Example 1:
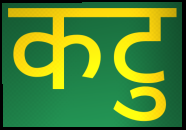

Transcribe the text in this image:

कटु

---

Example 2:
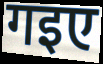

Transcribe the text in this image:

गइए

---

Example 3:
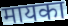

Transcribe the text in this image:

मायका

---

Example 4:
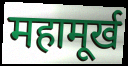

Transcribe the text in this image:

महामूर्ख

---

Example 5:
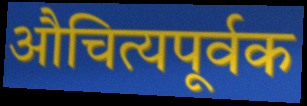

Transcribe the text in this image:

औचित्यपूर्वक